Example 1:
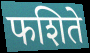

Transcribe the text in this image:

फशिते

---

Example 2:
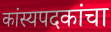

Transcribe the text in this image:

कांस्यपदकांचा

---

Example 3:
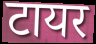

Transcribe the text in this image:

टायर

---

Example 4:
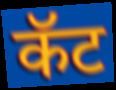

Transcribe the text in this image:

कॅट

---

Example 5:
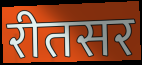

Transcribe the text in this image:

रीतसर